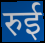
रुई